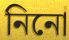
নিনো